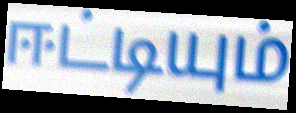
ஈட்டியும்